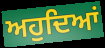
ਅਹੁਦਿਆਂ